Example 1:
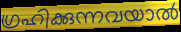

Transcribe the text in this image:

ഗ്രഹിക്കുന്നവയാൽ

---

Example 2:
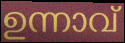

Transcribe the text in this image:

ഉന്നാവ്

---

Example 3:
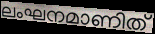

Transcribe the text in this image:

ലംഘനമാണിത്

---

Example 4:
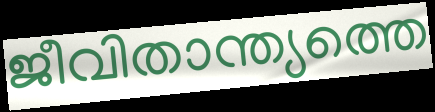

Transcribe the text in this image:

ജീവിതാന്ത്യത്തെ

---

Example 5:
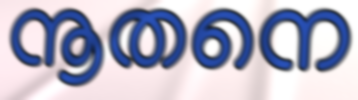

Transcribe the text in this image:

നൂതനെ